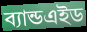
ব্যান্ডএইড